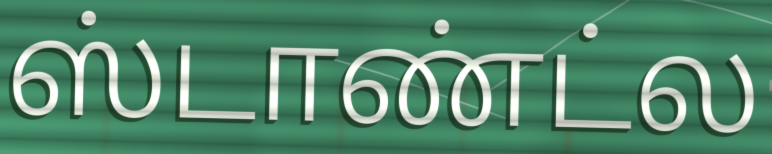
ஸ்டாண்ட்ல